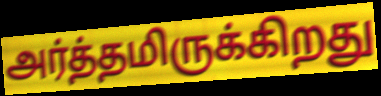
அர்த்தமிருக்கிறது